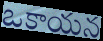
ఒకాయన